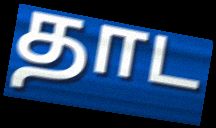
தாட